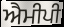
ਐਮੀਪੀ